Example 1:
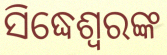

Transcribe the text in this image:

ସିଦ୍ଧେଶ୍ୱରଙ୍କ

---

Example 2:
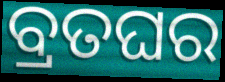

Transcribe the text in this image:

ବ୍ରତଘର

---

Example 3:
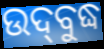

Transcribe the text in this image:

ଉଦ୍‍ବୁଦ୍ଧ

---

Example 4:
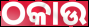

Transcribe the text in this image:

ଠକାଉ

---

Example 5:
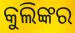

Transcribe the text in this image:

କୁଲିଙ୍କର